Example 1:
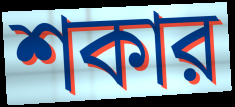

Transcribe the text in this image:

শকার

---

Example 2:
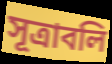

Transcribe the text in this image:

সূত্রাবলি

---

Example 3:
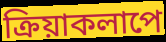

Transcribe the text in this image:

ক্রিয়াকলাপে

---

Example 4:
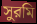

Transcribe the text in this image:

সুরমি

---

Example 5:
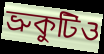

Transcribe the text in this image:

ভ্রুকুটিও